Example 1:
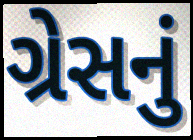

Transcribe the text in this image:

ગ્રેસનું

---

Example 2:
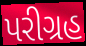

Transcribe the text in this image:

પરીગ્રહ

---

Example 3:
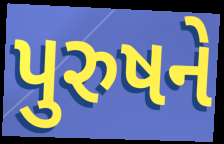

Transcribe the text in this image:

પુરુષને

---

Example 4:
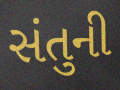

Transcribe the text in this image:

સંતુની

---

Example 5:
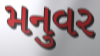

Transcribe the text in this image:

મનુવર